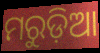
ମରୁଡ଼ିଆ